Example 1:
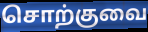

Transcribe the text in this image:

சொற்குவை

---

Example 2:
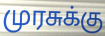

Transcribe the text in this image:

முரசுக்கு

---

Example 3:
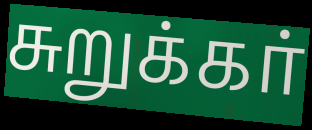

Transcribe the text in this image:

சுறுக்கர்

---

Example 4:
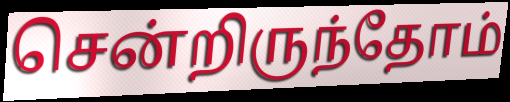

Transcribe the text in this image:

சென்றிருந்தோம்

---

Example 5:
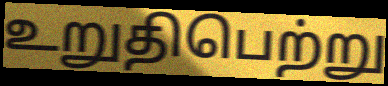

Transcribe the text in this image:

உறுதிபெற்று